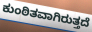
ಕುಂಠಿತವಾಗಿರುತ್ತದೆ